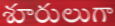
శూరులుగా